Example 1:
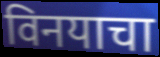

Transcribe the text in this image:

विनयाचा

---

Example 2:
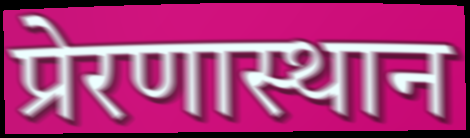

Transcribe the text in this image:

प्रेरणास्थान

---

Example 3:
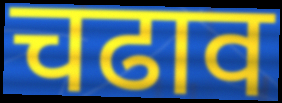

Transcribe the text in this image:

चढाव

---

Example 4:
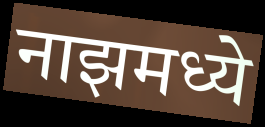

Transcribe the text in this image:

नाझमध्ये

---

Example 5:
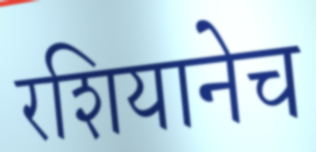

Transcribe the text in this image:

रशियानेच